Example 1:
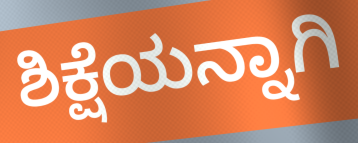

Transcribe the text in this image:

ಶಿಕ್ಷೆಯನ್ನಾಗಿ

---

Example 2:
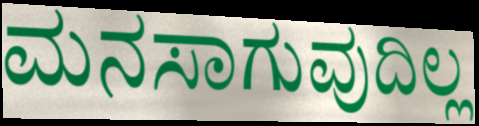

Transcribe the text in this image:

ಮನಸಾಗುವುದಿಲ್ಲ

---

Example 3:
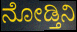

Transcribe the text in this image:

ನೋಡ್ತಿನಿ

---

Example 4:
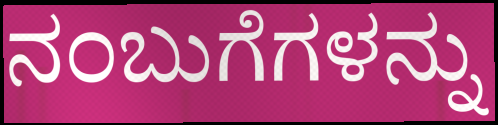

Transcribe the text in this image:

ನಂಬುಗೆಗಳನ್ನು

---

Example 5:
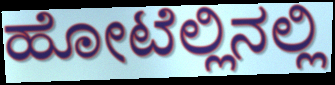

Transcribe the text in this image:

ಹೋಟೆಲ್ಲಿನಲ್ಲಿ